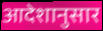
आदेशानुसार